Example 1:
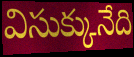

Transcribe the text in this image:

విసుక్కునేది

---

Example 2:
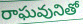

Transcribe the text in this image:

రాఘవునితో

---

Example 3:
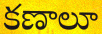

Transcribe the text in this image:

కణాలూ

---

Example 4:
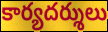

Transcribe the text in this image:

కార్యదర్శులు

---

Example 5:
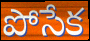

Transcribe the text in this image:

పోసేక